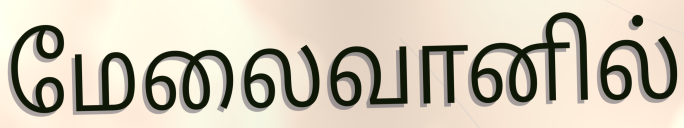
மேலைவானில்